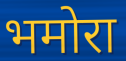
भमोरा